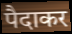
पैदाकर